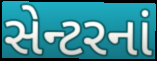
સેન્ટરનાં